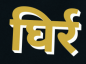
घिर्र